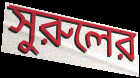
সুরুলের